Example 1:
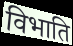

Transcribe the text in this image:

विभाति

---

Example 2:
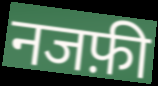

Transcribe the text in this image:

नजफ़ी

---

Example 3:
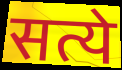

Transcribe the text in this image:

सत्ये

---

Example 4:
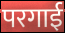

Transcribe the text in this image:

परगाई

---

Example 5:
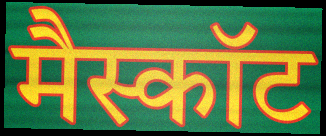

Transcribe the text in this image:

मैस्कॉट